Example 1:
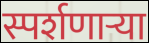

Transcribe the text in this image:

स्पर्शणाऱ्या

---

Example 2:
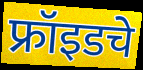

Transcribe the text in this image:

फ्रॉइडचे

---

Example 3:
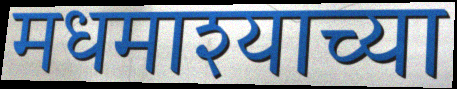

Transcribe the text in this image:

मधमाश्याच्या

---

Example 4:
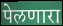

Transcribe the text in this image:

पेलणारा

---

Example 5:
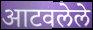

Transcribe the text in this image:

आटवलेले